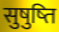
सुषुष्ति